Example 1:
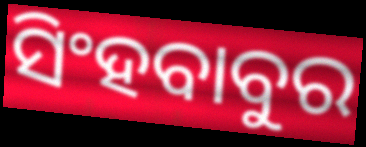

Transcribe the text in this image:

ସିଂହବାବୁର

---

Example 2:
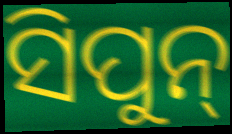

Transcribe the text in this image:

ସିପୁନ୍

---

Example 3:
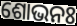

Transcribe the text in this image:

ଶୋଭନଃ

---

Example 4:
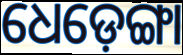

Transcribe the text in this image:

ଧେଡ଼େଙ୍ଗା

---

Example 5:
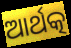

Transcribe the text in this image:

ଆର୍ଥତ୍କ